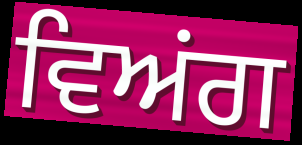
ਵਿਅਂਗ